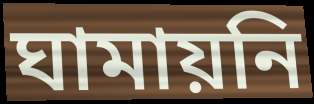
ঘামায়নি